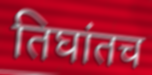
तिघांतच